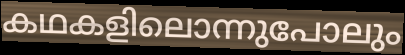
കഥകളിലൊന്നുപോലും